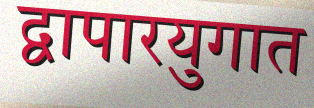
द्वापारयुगात